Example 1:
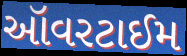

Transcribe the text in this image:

ઑવરટાઈમ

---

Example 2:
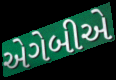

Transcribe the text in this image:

એગેબીએ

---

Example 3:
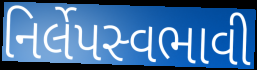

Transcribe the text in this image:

નિર્લેપસ્વભાવી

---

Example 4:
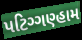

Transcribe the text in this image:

પટિગ્ગણ્હામ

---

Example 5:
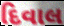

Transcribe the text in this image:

દિવાલ